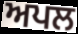
ਅਪਲ